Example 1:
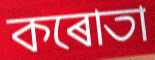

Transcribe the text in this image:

কৰোতা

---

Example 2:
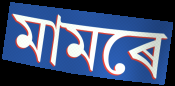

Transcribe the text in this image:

মামৰে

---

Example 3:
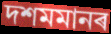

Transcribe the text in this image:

দশমমানৰ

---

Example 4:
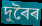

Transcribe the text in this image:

দুৰৈৰ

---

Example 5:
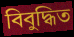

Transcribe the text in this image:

বিবুদ্ধিত